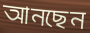
আনছেন